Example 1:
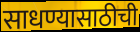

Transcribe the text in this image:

साधण्यासाठीची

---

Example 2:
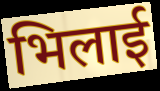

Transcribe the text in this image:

भिलाई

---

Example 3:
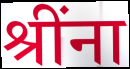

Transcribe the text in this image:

श्रींना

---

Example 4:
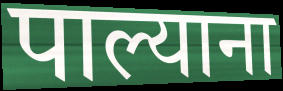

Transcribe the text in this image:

पाल्याना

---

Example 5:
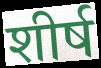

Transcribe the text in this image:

शीर्ष